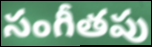
సంగీతపు